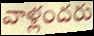
వాళ్లందరు